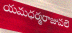
యమధర్మరాజువలె